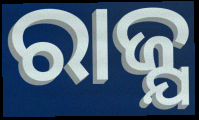
ରାଜ୍ଯ